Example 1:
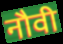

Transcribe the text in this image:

नौवी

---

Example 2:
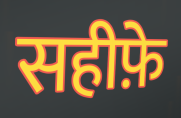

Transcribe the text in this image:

सहीफ़े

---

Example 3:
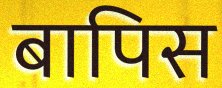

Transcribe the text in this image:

बापिस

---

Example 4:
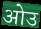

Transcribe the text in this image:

ओउ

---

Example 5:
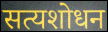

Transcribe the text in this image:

सत्यशोधन